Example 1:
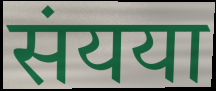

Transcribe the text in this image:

संयया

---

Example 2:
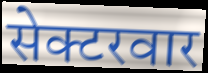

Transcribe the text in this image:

सेक्टरवार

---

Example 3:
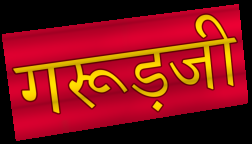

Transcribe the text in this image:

गरूड़जी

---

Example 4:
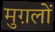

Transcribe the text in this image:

मुग़लों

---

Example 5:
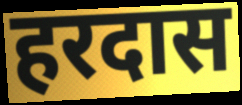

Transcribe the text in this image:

हरदास